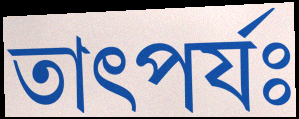
তাৎপর্যঃ